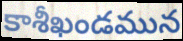
కాశీఖండమున